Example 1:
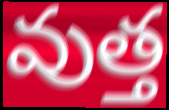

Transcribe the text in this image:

వుత్త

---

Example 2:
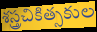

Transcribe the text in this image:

శస్త్రచికిత్సకుల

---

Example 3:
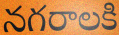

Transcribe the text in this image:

నగరాలకి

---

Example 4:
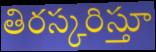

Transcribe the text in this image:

తిరస్కరిస్తూ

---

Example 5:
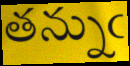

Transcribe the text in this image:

తన్నుఁ